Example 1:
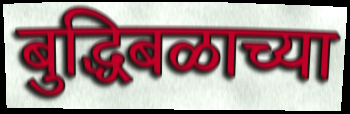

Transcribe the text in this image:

बुद्धिबळाच्या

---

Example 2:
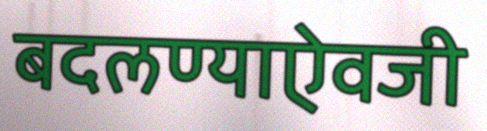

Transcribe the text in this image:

बदलण्याऐवजी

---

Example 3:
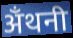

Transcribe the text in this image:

अँथनी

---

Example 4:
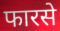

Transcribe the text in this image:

फारसे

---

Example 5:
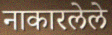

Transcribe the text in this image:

नाकारलेले